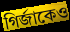
গির্জাকেও